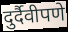
दुर्दैवीपणे